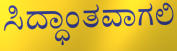
ಸಿದ್ಧಾಂತವಾಗಲಿ